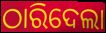
ଠାରିଦେଲା